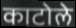
काटोले